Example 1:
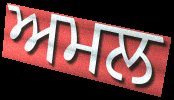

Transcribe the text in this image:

ਅਮਲ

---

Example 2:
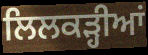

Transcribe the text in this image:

ਲਿਲਕੜ੍ਹੀਆਂ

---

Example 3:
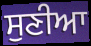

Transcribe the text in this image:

ਸੁਣੀਆ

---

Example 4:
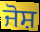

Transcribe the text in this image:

ਜੋਸ਼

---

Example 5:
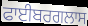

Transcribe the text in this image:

ਫਾਈਬਰਗਲਾਸ